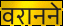
वरानने